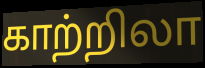
காற்றிலா